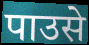
पाउसे